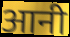
आनी